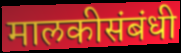
मालकीसंबंधी